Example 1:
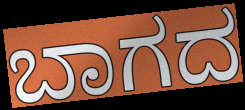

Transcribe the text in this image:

ಬಾಗದ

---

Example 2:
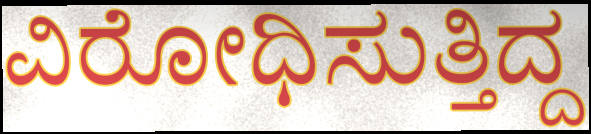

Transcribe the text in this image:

ವಿರೋಧಿಸುತ್ತಿದ್ದ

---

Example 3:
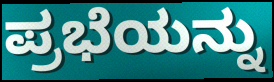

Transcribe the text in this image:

ಪ್ರಭೆಯನ್ನು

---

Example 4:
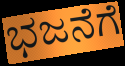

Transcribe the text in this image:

ಭಜನೆಗೆ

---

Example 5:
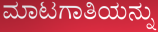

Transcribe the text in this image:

ಮಾಟಗಾತಿಯನ್ನು